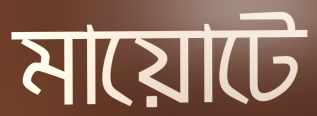
মায়োটে